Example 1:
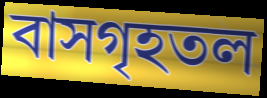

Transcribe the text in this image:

বাসগৃহতল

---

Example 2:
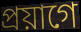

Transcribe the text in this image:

প্রয়াগে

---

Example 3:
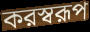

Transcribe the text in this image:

করস্বরূপ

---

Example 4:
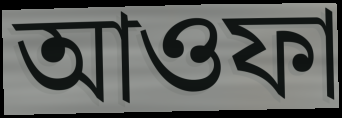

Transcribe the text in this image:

আওফা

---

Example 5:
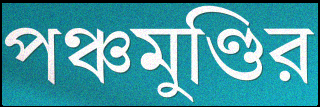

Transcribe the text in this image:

পঞ্চমুণ্ডির